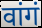
वांगं